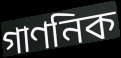
গাণনিক